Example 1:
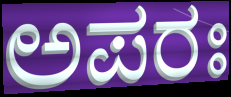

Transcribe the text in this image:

ಅಪರಃ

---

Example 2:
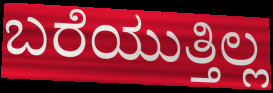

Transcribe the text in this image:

ಬರೆಯುತ್ತಿಲ್ಲ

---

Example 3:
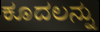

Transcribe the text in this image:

ಕೂದಲನ್ನು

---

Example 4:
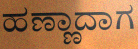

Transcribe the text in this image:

ಹಣ್ಣಾದಾಗ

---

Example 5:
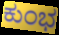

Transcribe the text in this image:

ಕುಂಭ